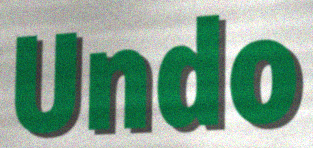
Undo